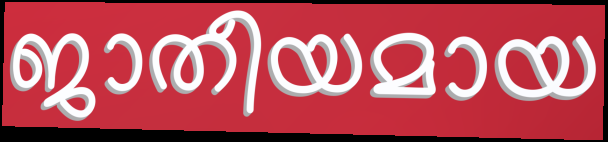
ജാതീയമായ